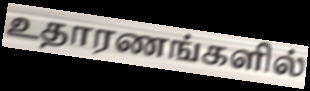
உதாரணங்களில்